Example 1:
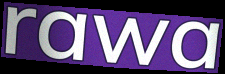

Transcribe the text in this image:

rawa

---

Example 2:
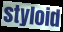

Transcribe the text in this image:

styloid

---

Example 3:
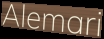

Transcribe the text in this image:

Alemari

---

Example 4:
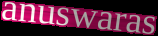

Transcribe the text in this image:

anuswaras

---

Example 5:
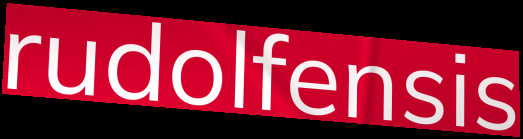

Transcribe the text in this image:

rudolfensis